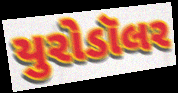
યુરોડૉલર